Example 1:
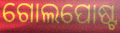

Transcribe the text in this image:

ଗୋଲପୋଷ୍ଟ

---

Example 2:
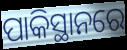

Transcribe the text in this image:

ପାକିସ୍ଥାନରେ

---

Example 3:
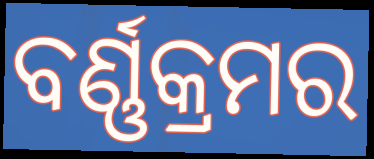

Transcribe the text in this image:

ବର୍ଣ୍ଣକ୍ରମର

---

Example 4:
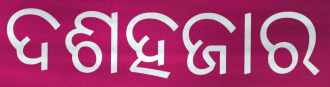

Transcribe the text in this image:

ଦଶହଜାର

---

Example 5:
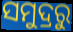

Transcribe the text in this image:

ସମୁଦ୍ରରୁ